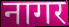
नागर